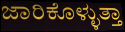
ಜಾರಿಕೊಳ್ಳುತ್ತಾ